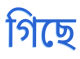
গিছে